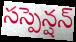
సస్పెన్షన్